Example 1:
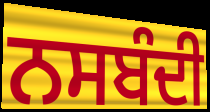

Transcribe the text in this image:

ਨਸਬੰਦੀ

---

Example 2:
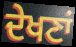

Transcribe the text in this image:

ਦੇਖਣਾਂ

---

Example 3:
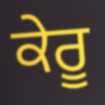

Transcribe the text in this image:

ਕੇਰੂ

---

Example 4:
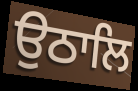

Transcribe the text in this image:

ਉਠਾਲਿ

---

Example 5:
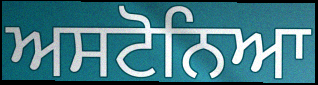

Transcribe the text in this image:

ਅਸਟੋਨਿਆ